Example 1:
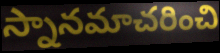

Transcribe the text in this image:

స్నానమాచరించి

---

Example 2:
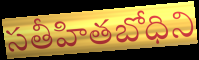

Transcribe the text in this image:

సతీహితబోధిని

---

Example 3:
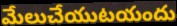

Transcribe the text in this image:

మేలుచేయుటయందు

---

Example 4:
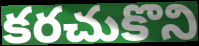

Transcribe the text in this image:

కరచుకొని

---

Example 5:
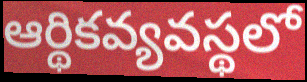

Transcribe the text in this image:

ఆర్థికవ్యవస్థలో